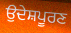
ਉਦੇਸ਼ਪੂਰਣ